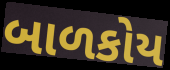
બાળકોય